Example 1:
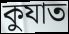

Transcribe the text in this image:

কুযাত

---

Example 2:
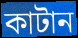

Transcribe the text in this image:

কাটান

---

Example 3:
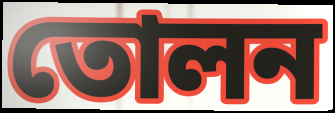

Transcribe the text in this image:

তোলন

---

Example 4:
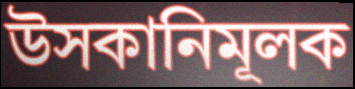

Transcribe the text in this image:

উসকানিমূলক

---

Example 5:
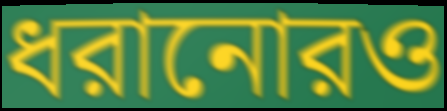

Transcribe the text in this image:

ধরানোরও